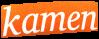
kamen